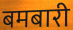
बमबारी